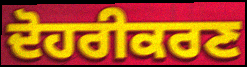
ਦੋਹਰੀਕਰਣ